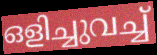
ഒളിച്ചുവച്ച്